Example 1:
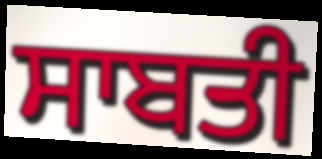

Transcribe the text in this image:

ਸਾਬਤੀ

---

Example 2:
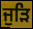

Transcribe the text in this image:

ਜੁੜਿ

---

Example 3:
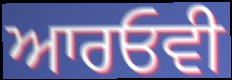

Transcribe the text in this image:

ਆਰਓਵੀ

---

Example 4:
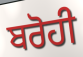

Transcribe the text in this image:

ਬਰੋਹੀ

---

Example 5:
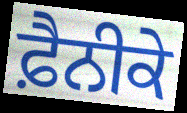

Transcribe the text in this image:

ਫ਼ੈਨੀਕੇ